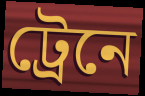
ট্রেনে